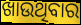
ଖାଉଥିବାର